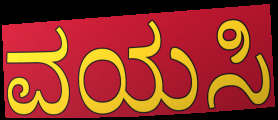
ವಯಸಿ